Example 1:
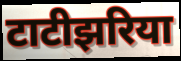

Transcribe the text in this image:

टाटीझरिया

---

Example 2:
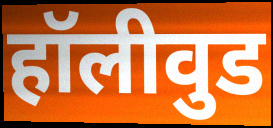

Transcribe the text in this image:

हॉलीवुड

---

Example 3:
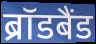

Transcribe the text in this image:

ब्रॉडबैंड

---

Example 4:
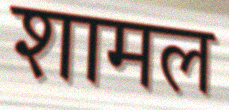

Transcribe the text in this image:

शामल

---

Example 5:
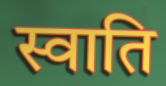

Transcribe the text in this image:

स्वाति